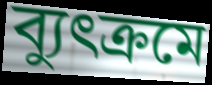
ব্যুৎক্রমে